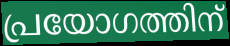
പ്രയോഗത്തിന്